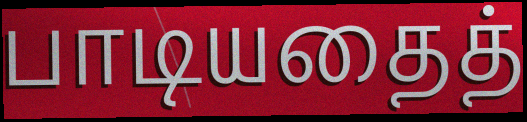
பாடியதைத்